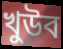
খুউব